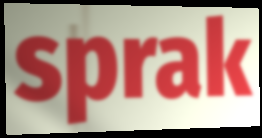
sprak